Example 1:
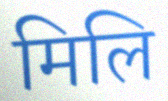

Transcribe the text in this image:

मिलि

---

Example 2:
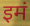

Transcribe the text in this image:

इमं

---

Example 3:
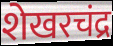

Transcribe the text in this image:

शेखरचंद्र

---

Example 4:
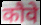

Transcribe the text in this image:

कौवे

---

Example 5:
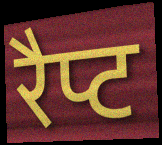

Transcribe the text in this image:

रैप्ट